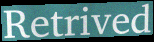
Retrived